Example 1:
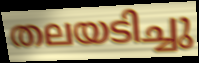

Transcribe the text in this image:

തലയടിച്ചു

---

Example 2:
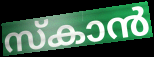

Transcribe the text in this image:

സ്കാൻ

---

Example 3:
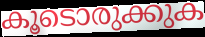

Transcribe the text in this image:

കൂടൊരുക്കുക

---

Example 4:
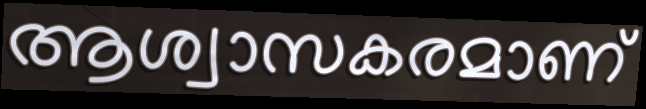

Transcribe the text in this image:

ആശ്വാസകരമാണ്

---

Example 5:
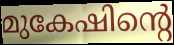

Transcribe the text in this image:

മുകേഷിന്റെ